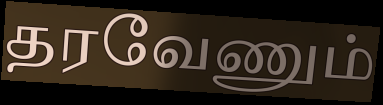
தரவேணும்